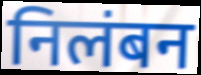
निलंबन